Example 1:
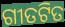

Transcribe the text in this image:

ଗୀତଟିତ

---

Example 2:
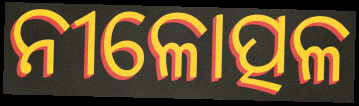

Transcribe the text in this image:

ନୀଳୋତ୍ପଳ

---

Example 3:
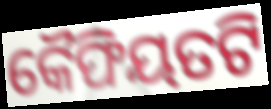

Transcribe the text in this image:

କୈଫିୟତଟି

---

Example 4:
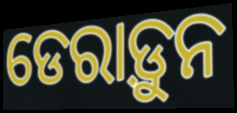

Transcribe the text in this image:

ଡେରାଡ଼ୁନ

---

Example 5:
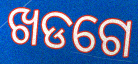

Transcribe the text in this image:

ଖଡଗେ